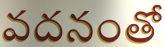
వదనంతో